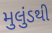
મુલુંડથી